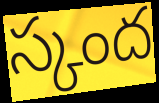
స్కంద